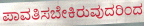
ಪಾವತಿಸಬೇಕಿರುವುದರಿಂದ